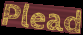
Plead